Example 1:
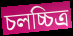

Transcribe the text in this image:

চলচ্চিত্র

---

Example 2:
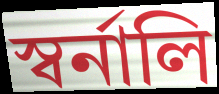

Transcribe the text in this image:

স্বর্নালি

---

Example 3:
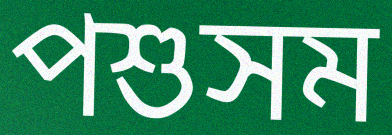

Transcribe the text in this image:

পশুসম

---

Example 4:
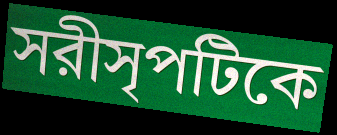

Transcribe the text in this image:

সরীসৃপটিকে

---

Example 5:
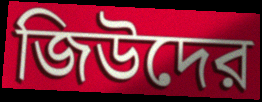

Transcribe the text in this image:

জিউদের